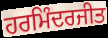
ਹਰਮਿੰਦਰਜੀਤ